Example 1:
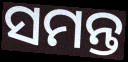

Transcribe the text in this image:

ସମନ୍ତ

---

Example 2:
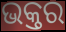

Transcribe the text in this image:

ଭକ୍ତର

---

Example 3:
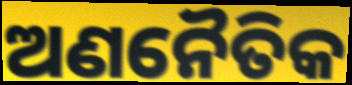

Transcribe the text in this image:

ଅଣନୈତିକ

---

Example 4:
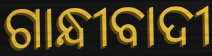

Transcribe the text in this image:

ଗାନ୍ଧୀବାଦୀ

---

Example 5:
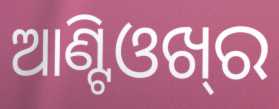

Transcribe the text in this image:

ଆଣ୍ଟିଓଖ୍‍ର